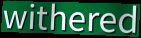
withered